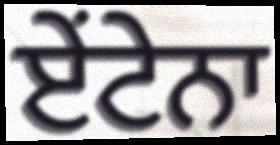
ਏਂਟੇਨਾ